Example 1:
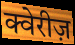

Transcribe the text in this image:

क्वेरीज़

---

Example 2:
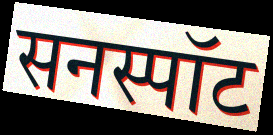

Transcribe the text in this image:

सनस्पॉट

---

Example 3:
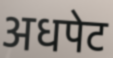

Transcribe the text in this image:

अधपेट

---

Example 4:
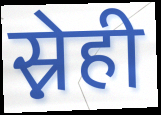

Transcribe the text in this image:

स्नेही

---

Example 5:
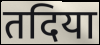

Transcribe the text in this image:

तदिया